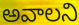
అవాలని